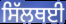
ਸਿੱਲਥਈ